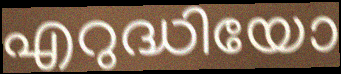
എറുദ്ധിയോ